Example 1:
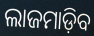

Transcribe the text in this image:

ଲାଜମାଡ଼ିବ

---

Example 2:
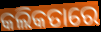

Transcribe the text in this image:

କଲିକତାରେ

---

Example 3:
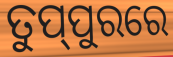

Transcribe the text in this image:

ତୁପ୍‌ପୁରରେ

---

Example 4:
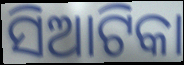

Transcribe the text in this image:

ସିଆଟିକା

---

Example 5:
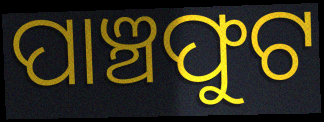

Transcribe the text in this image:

ପାଞ୍ଚଫୁଟ